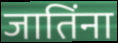
जातिंना